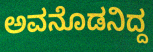
ಅವನೊಡನಿದ್ದ